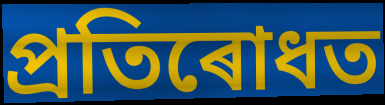
প্ৰতিৰোধত